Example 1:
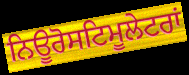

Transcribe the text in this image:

ਨਿਊਰੋਸਟਿਮੂਲੇਟਰਾਂ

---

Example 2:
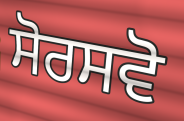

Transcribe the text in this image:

ਸੋਰਸਵੋ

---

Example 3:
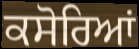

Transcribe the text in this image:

ਕਸੋਰਿਆਂ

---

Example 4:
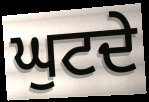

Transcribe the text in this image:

ਘੁਟਦੇ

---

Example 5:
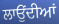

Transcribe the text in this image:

ਲਾਉੰਦੀਆਂ